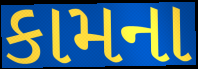
કામના